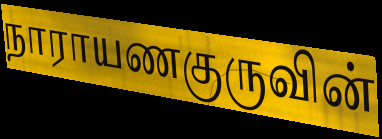
நாராயணகுருவின்